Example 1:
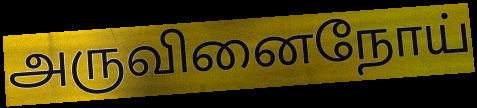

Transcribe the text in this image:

அருவினைநோய்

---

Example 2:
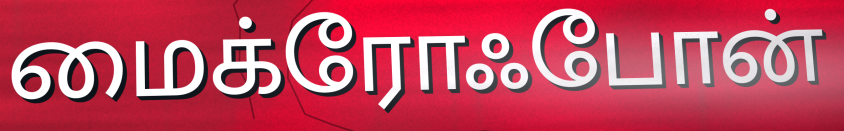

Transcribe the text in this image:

மைக்ரோஃபோன்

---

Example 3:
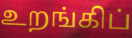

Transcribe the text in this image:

உறங்கிப்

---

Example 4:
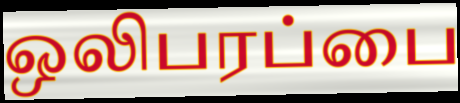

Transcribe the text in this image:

ஒலிபரப்பை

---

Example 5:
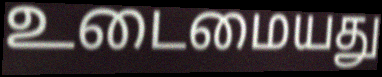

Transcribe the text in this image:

உடைமையது